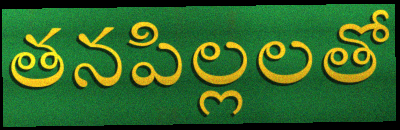
తనపిల్లలతో